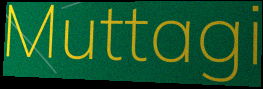
Muttagi